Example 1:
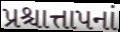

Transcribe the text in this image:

પ્રશ્ચાત્તાપનાં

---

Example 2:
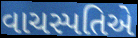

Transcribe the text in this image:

વાચસ્પતિએ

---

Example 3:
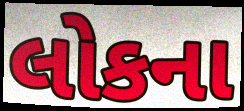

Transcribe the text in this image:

લોકના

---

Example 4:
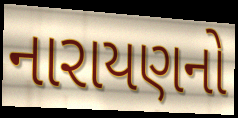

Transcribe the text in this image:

નારાયણનો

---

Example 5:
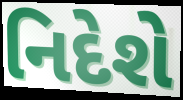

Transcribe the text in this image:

નિદેશે